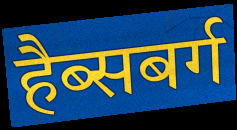
हैब्सबर्ग